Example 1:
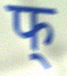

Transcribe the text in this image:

फ्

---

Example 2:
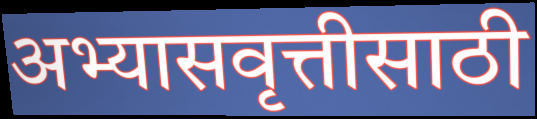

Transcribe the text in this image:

अभ्यासवृत्तीसाठी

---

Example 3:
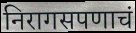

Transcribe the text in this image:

निरागसपणाचं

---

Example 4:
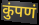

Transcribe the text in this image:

कुंपणं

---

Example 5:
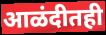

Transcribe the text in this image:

आळंदीतही